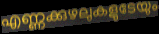
എണ്ണക്കുഴലുകളുടേയും